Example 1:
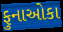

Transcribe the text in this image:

ફુનાઓકા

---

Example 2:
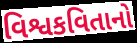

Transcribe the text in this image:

વિશ્વકવિતાનો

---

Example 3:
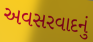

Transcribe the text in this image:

અવસરવાદનું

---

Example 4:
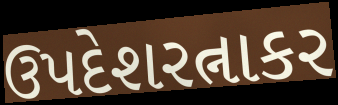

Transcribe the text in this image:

ઉપદેશરત્નાકર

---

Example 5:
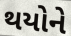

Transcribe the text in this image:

થયોને